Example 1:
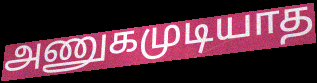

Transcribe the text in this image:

அணுகமுடியாத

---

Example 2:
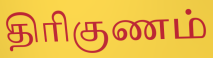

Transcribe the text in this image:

திரிகுணம்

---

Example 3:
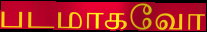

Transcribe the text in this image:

படமாகவோ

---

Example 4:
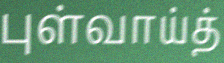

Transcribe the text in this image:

புள்வாய்த்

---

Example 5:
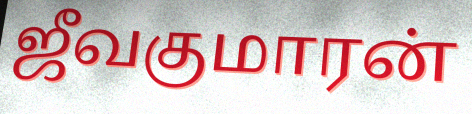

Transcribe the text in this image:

ஜீவகுமாரன்